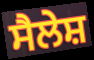
ਸੈਲੇਸ਼